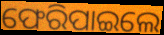
ଫେରିପାଇଲେ